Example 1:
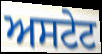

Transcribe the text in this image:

ਅਸਟੇਟ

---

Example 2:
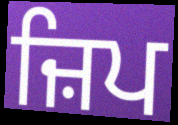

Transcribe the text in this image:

ਜ਼ਿਪ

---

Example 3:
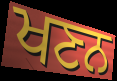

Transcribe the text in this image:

ਖਣਨ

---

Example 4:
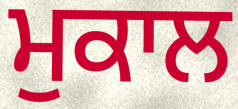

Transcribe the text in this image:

ਮੁਕਾਲ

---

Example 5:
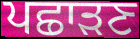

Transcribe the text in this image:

ਪਛਾੜਣ